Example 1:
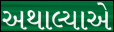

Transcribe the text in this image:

અથાલ્યાએ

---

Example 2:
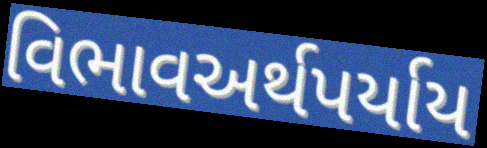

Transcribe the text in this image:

વિભાવઅર્થપર્યાય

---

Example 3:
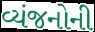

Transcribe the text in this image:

વ્યંજનોની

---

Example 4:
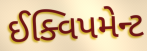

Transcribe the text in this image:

ઈક્વિપમેન્ટ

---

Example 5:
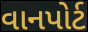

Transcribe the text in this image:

વાનપોર્ટ